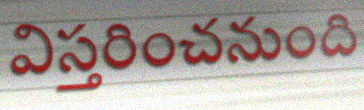
విస్తరించనుంది